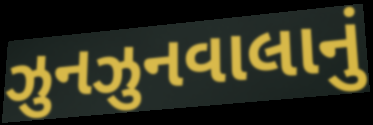
ઝુનઝુનવાલાનું